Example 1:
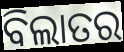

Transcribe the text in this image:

ବିଲାତର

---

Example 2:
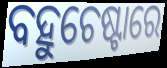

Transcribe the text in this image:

ବହୁଚେଷ୍ଟାରେ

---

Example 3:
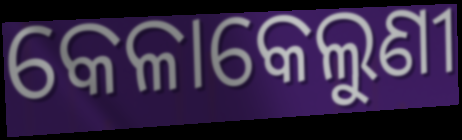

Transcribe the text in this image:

କେଳାକେଲୁଣୀ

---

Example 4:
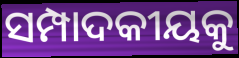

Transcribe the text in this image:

ସମ୍ପାଦକୀୟକୁ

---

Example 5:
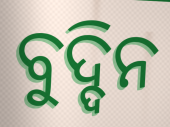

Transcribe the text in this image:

ବୁଦ୍ଦିନ